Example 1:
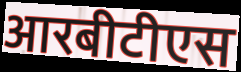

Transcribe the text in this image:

आरबीटीएस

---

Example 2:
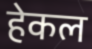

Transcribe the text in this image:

हेकल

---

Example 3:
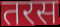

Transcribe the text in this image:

तरस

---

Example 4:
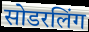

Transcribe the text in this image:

सोडरलिंग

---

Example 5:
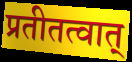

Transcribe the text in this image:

प्रतीतत्वात्